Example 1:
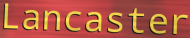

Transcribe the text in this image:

Lancaster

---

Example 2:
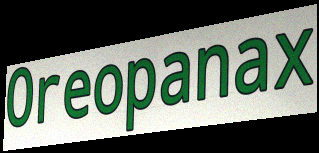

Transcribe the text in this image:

Oreopanax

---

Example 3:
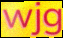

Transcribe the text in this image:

wjg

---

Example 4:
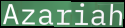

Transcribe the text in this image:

Azariah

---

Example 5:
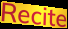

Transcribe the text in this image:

Recite